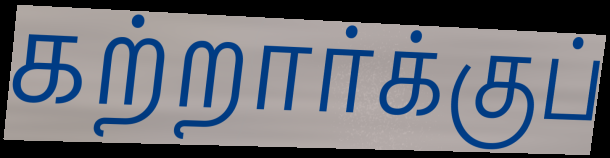
கற்றார்க்குப்